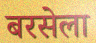
बरसेला